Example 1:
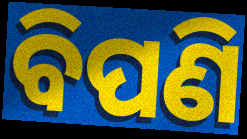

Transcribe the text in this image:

ବିପଣି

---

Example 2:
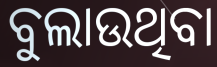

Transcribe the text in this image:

ବୁଲାଉଥିବା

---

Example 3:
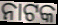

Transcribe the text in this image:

ନାଟକ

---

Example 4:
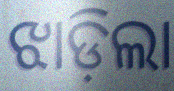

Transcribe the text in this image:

ଝାଡ଼ିଲା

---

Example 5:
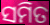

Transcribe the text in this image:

ସମିତ